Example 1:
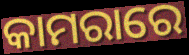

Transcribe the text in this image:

କାମରାରେ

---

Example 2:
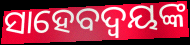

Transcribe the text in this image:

ସାହେବଦ୍ୱୟଙ୍କ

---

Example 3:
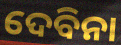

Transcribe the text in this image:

ଦେବିନା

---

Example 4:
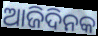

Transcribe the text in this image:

ଆଜିଦିନକ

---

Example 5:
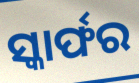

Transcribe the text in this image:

ସ୍କାର୍ଫର